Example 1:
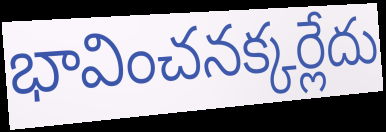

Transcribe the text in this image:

భావించనక్కర్లేదు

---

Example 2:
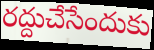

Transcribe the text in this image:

రద్దుచేసేందుకు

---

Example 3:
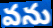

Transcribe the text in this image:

వను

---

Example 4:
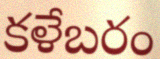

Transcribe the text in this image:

కళేబరం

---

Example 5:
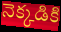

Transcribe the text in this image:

నెక్కడికి